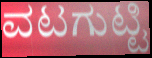
ವಟಗುಟ್ಟಿ